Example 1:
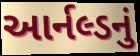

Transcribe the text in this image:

આર્નલ્ડનું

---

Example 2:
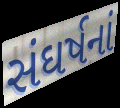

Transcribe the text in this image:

સંઘર્ષનાં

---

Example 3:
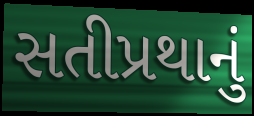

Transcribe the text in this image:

સતીપ્રથાનું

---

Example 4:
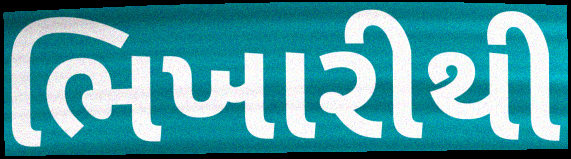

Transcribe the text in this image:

ભિખારીથી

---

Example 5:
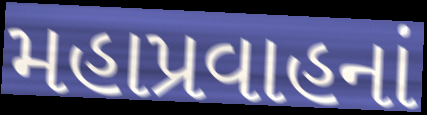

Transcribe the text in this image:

મહાપ્રવાહનાં